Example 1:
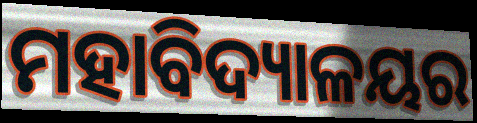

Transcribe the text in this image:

ମହାବିଦ୍ୟାଳୟର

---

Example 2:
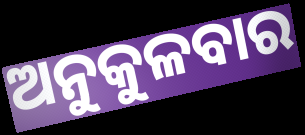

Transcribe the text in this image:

ଅନୁକୁଳବାର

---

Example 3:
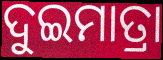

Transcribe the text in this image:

ଦୁଇମାତ୍ରା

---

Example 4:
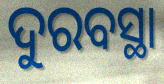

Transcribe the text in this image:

ଦୁରବସ୍ଥା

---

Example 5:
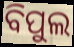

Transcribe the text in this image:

ବିପୁଲ